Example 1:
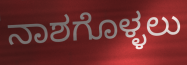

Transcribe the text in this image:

ನಾಶಗೊಳ್ಳಲು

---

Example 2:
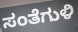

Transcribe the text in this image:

ಸಂತೆಗುಳಿ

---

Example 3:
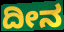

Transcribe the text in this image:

ದೀನ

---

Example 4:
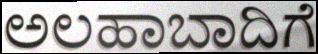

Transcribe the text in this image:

ಅಲಹಾಬಾದಿಗೆ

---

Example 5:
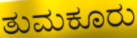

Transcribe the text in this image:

ತುಮಕೂರು